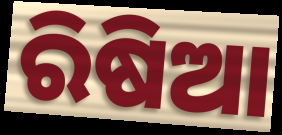
ରିଷିଆ